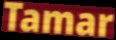
Tamar